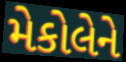
મેકોલેને